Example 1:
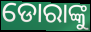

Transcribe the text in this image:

ଡୋରାଙ୍କୁ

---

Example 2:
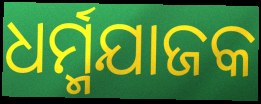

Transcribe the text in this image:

ଧର୍ମ୍ମଯାଜକ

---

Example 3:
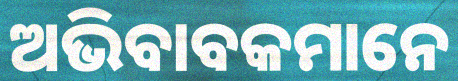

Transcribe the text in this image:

ଅଭିବାବକମାନେ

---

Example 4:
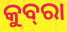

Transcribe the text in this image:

କୁବ୍‍ରା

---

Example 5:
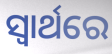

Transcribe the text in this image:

ସ୍ବାର୍ଥରେ